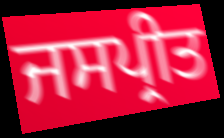
ਜਸਪ੍ਰੀਤ